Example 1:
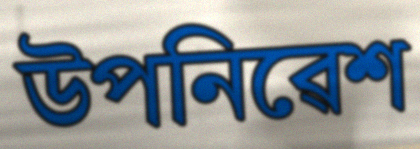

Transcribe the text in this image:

উপনিৱেশ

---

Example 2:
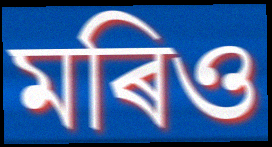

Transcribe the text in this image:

মৰিও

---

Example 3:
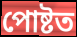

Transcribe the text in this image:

পোষ্টত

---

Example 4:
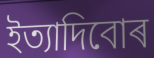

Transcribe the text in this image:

ইত্যাদিবোৰ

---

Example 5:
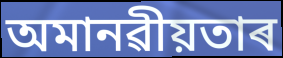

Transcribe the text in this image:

অমানৱীয়তাৰ